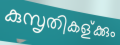
കുസൃതികള്ക്കും